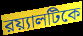
রয়্যালটিকে